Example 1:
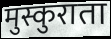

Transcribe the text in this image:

मुस्कुराता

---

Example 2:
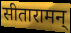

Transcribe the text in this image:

सीतारामन्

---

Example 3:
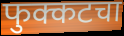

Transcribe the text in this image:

फुक्कटचा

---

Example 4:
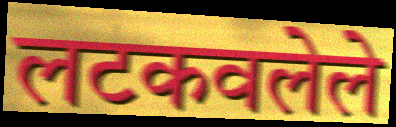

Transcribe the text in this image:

लटकवलेले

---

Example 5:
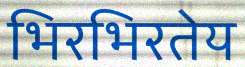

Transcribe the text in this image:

भिरभिरतेय